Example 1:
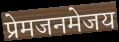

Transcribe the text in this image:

प्रेमजनमेजय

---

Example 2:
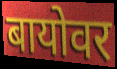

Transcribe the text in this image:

बायोवर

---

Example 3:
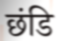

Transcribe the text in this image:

छंडि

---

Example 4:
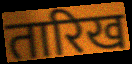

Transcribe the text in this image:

तारिख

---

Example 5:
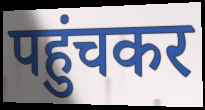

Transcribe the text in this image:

पहुंचकर